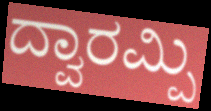
ದ್ವಾರಮ್ಪಿ